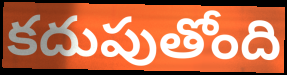
కదుపుతోంది